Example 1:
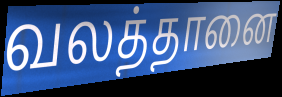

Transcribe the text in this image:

வலத்தானை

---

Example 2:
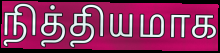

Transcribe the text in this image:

நித்தியமாக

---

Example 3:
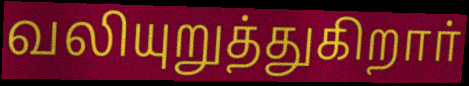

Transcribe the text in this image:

வலியுறுத்துகிறார்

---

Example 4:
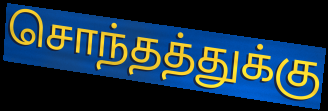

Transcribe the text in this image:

சொந்தத்துக்கு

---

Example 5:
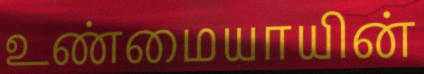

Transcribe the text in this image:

உண்மையாயின்